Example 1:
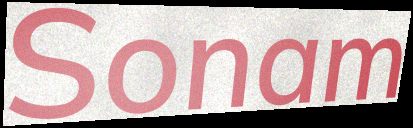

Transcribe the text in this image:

Sonam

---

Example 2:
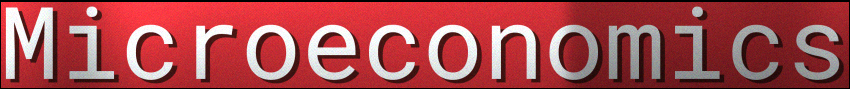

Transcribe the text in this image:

Microeconomics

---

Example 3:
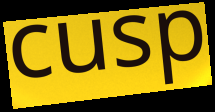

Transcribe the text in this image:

cusp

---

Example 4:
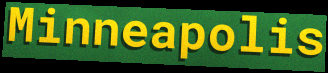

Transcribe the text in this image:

Minneapolis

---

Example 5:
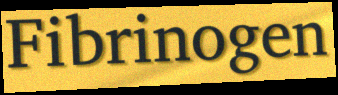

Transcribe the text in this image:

Fibrinogen